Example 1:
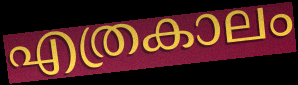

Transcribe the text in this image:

എത്രകാലം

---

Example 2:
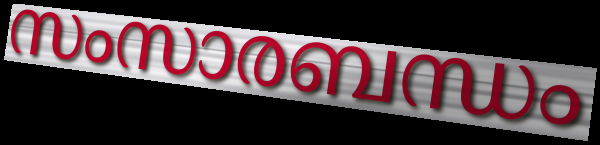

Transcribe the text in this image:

സംസാരബന്ധം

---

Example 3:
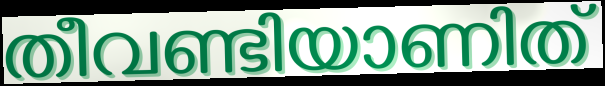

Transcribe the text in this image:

തീവണ്ടിയാണിത്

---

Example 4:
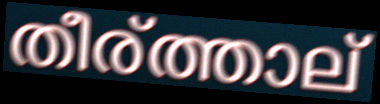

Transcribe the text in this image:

തീര്ത്താല്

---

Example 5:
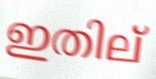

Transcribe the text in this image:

ഇതില്